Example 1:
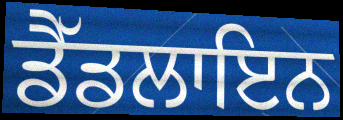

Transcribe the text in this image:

ਡੈੱਡਲਾਇਨ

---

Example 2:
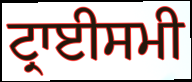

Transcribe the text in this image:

ਟ੍ਰਾਈਸਮੀ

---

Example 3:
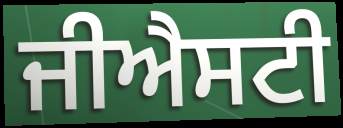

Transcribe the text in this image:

ਜੀਐਸਟੀ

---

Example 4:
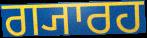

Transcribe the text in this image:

ਗ੍ਯਾਰਹ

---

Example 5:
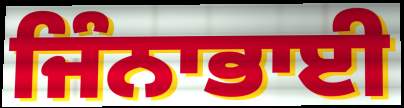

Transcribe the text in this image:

ਜਿੰਨਾਭਾਈ